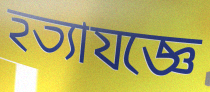
হত্যাযজ্ঞে